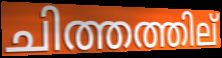
ചിത്തത്തില്